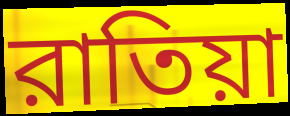
রাতিয়া